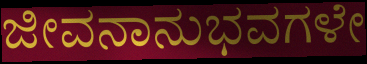
ಜೀವನಾನುಭವಗಳೇ